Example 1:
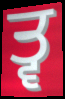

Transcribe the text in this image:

ਤ੍ਵ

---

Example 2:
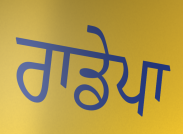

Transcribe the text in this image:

ਰਾਡੇਪਾ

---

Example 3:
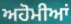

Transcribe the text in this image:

ਅਹੋਮੀਆਂ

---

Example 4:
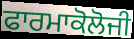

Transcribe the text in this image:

ਫਾਰਮਾਕੋਲੋਜੀ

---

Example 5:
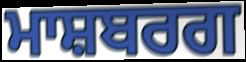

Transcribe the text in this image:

ਮਾਸ਼ਬਰਗ